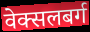
वेक्सलबर्ग